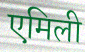
एमिली